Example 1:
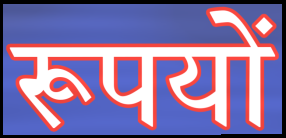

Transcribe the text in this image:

रूपयों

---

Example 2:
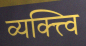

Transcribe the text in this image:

व्यक्त्त्वि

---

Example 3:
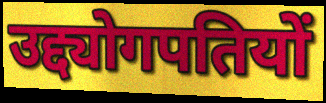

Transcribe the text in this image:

उद्द्योगपतियों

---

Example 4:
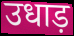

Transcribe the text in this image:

उधाड़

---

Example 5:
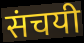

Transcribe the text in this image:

संचयी